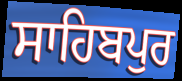
ਸਾਹਿਬਪੁਰ